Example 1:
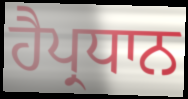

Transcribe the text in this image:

ਹੈਪ੍ਰਧਾਨ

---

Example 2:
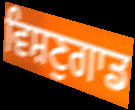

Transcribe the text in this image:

ਵਿਸ਼ਣੁਗਾਡ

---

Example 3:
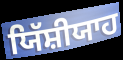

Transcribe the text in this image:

ਯਿੱਸ਼ੀਯਾਹ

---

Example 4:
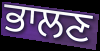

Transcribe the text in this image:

ਭਾਲਣ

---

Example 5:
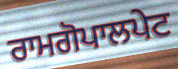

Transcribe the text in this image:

ਰਾਮਗੋਪਾਲਪੇਟ